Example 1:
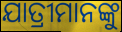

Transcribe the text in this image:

ଯାତ୍ରୀମାନଙ୍କୁ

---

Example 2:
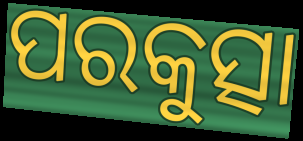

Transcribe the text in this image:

ପରକୁତ୍ସା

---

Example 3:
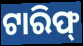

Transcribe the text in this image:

ଟାରିଫ୍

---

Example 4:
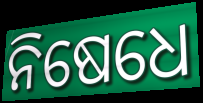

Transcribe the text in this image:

ନିଷେଧେ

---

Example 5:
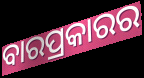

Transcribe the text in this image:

ବାରପ୍ରକାରର